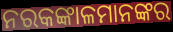
ନରକଙ୍କାଳମାନଙ୍କର